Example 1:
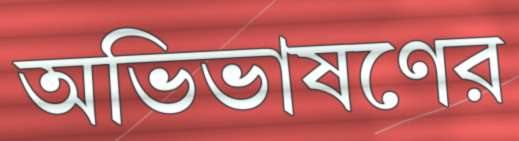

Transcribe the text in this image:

অভিভাষণের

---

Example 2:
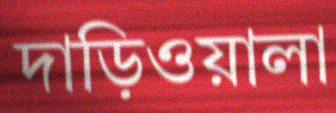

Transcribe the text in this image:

দাড়িওয়ালা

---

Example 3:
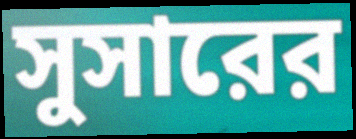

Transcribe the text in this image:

সুসারের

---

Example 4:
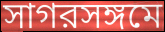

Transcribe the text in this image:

সাগরসঙ্গমে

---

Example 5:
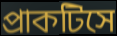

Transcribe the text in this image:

প্রাকটিসে